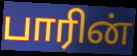
பாரின்